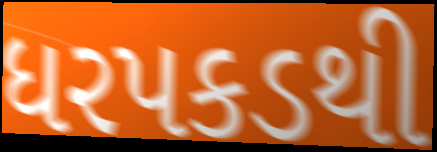
ધરપકડથી